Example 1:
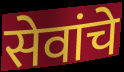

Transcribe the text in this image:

सेवांचे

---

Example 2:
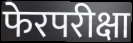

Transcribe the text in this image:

फेरपरीक्षा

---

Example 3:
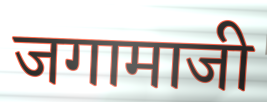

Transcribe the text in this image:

जगामाजी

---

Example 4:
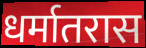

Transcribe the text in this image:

धर्मातरास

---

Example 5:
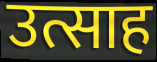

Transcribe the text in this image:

उत्साह